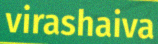
virashaiva